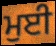
ਮੁਈ